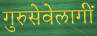
गुरुसेवेलागीं